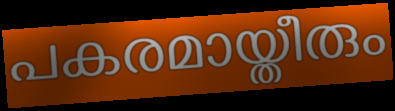
പകരമായ്തീരും